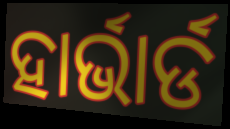
ହାର୍ଭାର୍ଡ